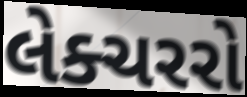
લેક્ચરરો